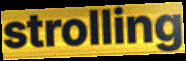
strolling